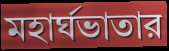
মহার্ঘভাতার